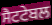
ਸੈਟਟੇਬਲ